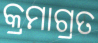
କ୍ରମାଗ୍ରତ